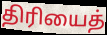
திரியைத்